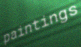
paintings